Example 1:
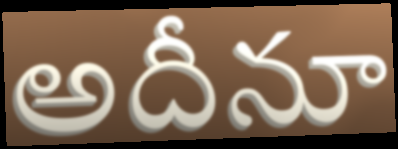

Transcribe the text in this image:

అదీనూ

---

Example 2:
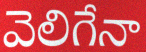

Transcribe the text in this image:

వెలిగేనా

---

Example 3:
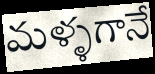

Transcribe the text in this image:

మళ్ళగానే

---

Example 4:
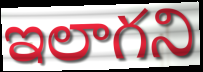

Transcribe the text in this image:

ఇలాగని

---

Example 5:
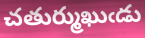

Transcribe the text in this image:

చతుర్ముఖుఁడు